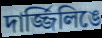
দার্জ্জিলিঙে